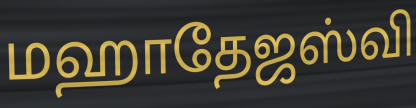
மஹாதேஜஸ்வி